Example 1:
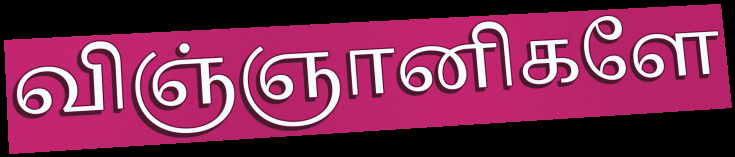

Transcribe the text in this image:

விஞ்ஞானிகளே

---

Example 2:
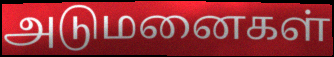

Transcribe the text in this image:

அடுமனைகள்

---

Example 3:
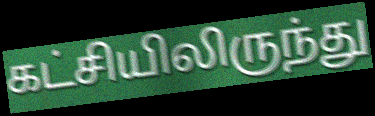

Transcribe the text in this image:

கட்சியிலிருந்து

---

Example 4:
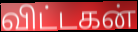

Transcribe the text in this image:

விட்டகன்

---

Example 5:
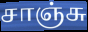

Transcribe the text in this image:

சாஞ்சு